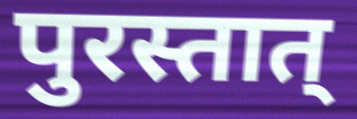
पुरस्तात्